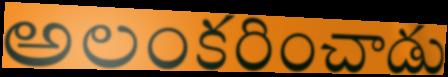
అలంకరించాడు